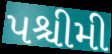
પશ્ચીમી